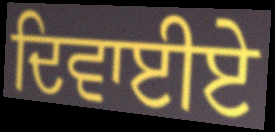
ਦਿਵਾਈਏ